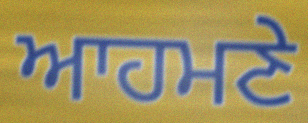
ਆਹਮਣੇ